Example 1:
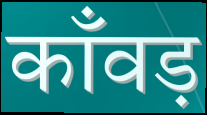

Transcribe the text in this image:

काँवड़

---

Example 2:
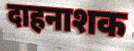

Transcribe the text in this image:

दाहनाशक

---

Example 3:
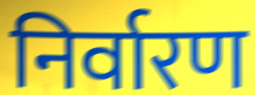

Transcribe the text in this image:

निर्वारण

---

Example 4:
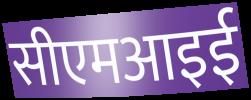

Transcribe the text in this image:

सीएमआइई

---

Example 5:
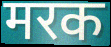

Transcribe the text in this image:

मरक